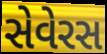
સેવેરસ